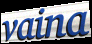
vaina